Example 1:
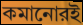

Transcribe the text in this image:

কমানোরই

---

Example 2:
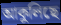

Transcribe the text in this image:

আকুলিছে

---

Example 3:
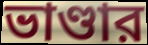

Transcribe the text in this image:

ভাণ্ডার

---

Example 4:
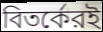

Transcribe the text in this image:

বিতর্কেরই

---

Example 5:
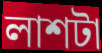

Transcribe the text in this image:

লাশটা